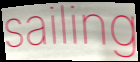
sailing